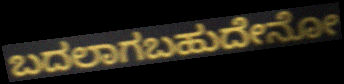
ಬದಲಾಗಬಹುದೇನೋ